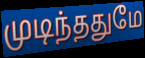
முடிந்ததுமே